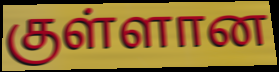
குள்ளான